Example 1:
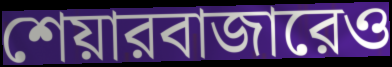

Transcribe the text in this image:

শেয়ারবাজারেও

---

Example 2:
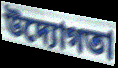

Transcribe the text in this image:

উদ্যোগতা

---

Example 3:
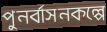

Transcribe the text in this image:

পুনর্বাসনকল্পে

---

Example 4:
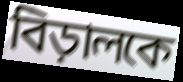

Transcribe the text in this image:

বিড়ালকে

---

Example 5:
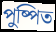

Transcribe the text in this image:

পুষ্পিত